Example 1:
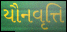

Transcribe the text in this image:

યૌનવૃત્તિ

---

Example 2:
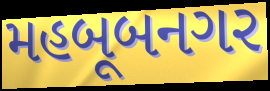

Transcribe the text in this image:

મહબૂબનગર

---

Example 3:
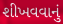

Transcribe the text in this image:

શીખવવાનું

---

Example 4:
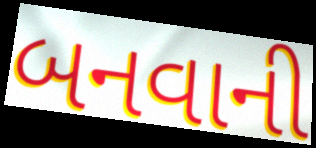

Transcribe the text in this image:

બનવાની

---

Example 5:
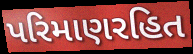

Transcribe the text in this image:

પરિમાણરહિત